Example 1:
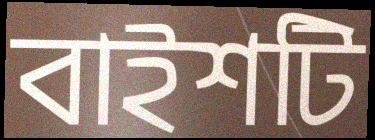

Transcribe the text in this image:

বাইশটি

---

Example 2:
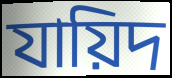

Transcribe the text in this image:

যায়িদ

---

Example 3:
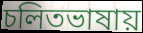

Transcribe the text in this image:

চলিতভাষায়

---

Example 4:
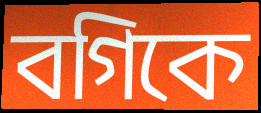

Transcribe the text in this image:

বগিকে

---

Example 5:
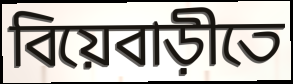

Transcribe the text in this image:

বিয়েবাড়ীতে